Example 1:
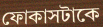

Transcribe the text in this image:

ফোকাসটাকে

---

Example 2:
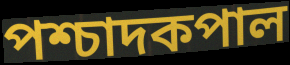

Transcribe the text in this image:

পশ্চাদকপাল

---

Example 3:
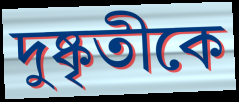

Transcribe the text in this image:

দুষ্কৃতীকে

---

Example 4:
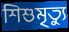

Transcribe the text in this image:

শিশুমৃত্যু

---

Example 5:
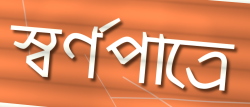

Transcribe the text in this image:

স্বর্ণপাত্রে